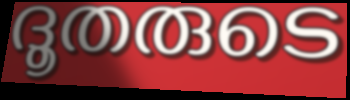
ദൂതരുടെ